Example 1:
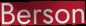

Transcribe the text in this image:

Berson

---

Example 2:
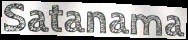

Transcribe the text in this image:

Satanama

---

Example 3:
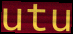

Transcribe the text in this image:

utu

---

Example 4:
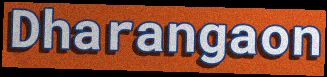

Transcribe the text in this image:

Dharangaon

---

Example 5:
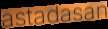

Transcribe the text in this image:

astadasan